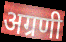
अग्रणी